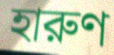
হারুণ